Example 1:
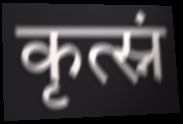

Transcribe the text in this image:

कृत्स्नं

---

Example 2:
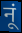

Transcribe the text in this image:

नूं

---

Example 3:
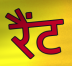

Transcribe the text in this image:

रैंट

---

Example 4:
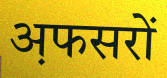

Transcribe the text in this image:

अ़फसरों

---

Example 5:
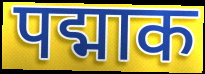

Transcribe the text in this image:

पद्माक